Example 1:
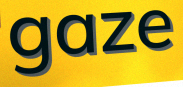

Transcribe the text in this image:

gaze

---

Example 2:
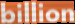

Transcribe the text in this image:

billion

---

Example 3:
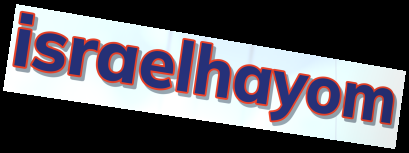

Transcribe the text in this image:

israelhayom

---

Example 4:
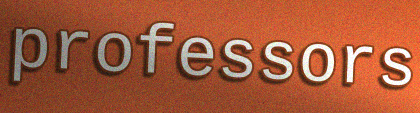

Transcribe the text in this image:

professors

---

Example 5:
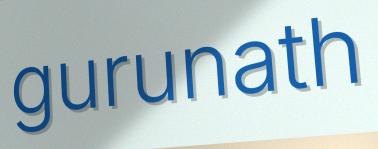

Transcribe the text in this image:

gurunath